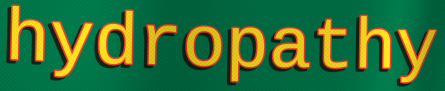
hydropathy